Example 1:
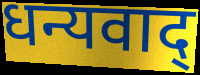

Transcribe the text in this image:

धन्यवाद्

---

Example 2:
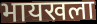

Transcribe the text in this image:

भायखला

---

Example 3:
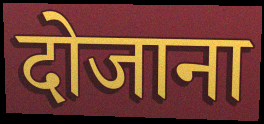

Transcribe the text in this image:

दोजाना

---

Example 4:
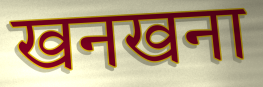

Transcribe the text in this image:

खनखना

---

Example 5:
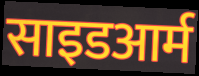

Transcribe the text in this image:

साइडआर्म